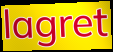
lagret